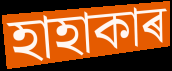
হাহাকাৰ